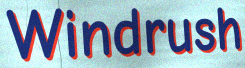
Windrush